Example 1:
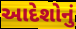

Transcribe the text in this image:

આદેશોનું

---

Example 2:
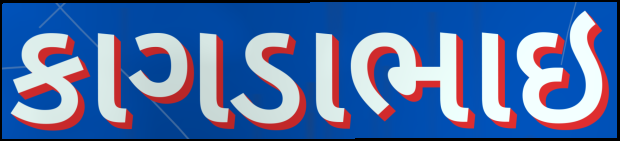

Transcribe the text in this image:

કાગડાભાઇ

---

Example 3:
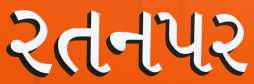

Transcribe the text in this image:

રતનપર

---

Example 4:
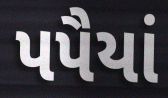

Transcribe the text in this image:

પપૈયાં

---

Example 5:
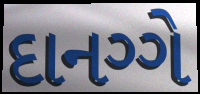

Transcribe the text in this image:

દાનગ્ગે